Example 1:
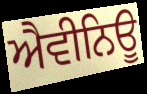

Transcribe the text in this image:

ਐਵੀਨਿਊ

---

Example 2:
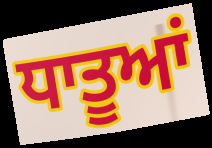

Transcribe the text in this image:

ਧਾਤੂਆਂ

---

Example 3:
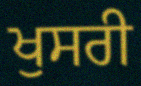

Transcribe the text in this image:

ਖੁਸਰੀ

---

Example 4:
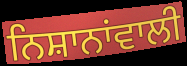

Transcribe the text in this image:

ਨਿਸ਼ਾਨਾਂਵਾਲੀ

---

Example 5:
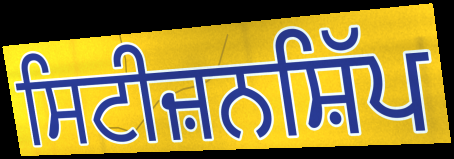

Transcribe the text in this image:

ਸਿਟੀਜ਼ਨਸ਼ਿੱਪ